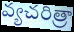
వ్యచరిత్రా